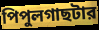
পিপুলগাছটার